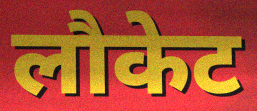
लौकेट